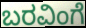
ಬರವಿಂಗೆ